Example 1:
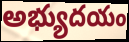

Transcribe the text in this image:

అభ్యుదయం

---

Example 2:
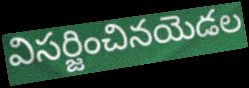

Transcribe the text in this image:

విసర్జించినయెడల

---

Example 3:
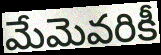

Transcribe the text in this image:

మేమెవరికీ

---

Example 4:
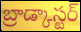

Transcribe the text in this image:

బ్రాడ్కాస్టర్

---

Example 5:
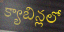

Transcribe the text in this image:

క్యాబిన్లలో